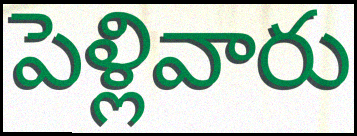
పెళ్లివారు